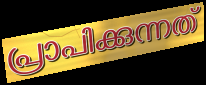
പ്രാപിക്കുന്നത്